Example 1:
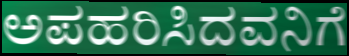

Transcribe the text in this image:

ಅಪಹರಿಸಿದವನಿಗೆ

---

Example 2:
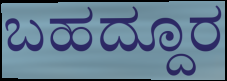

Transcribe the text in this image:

ಬಹದ್ದೂರ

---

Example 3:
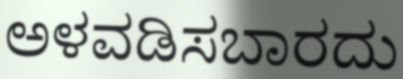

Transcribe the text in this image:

ಅಳವಡಿಸಬಾರದು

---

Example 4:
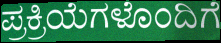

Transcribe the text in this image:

ಪ್ರಕ್ರಿಯೆಗಳೊಂದಿಗೆ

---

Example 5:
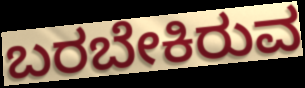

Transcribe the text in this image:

ಬರಬೇಕಿರುವ